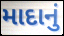
માદાનું